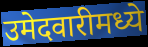
उमेदवारीमध्ये